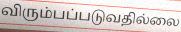
விரும்பப்படுவதில்லை